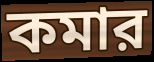
কমার